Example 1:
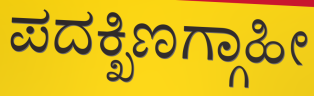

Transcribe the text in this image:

ಪದಕ್ಖಿಣಗ್ಗಾಹೀ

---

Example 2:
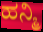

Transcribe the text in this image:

ಹನ್ಮಿ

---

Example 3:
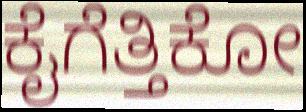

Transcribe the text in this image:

ಕೈಗೆತ್ತಿಕೋ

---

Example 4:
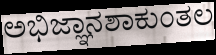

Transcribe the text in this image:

ಅಭಿಜ್ಞಾನಶಾಕುಂತಲ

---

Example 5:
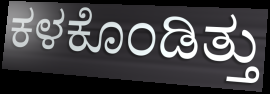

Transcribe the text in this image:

ಕಳಕೊಂಡಿತ್ತು